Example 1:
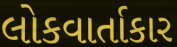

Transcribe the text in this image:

લોકવાર્તાકાર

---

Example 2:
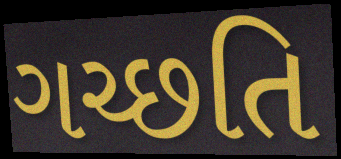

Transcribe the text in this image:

ગચ્છતિ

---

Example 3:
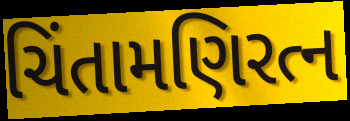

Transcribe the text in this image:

ચિંતામણિરત્ન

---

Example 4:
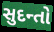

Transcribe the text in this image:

સુદન્તો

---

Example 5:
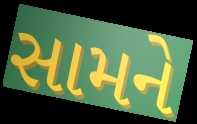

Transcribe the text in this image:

સામને